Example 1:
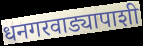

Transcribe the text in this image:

धनगरवाड्यापाशी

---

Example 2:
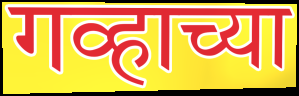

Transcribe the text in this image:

गव्हाच्या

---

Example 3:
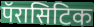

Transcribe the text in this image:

पॅरासिटिक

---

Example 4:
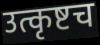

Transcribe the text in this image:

उत्कृष्टच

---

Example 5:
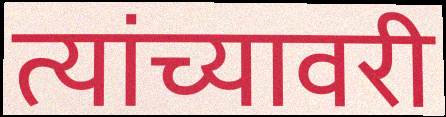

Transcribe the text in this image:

त्यांच्यावरी